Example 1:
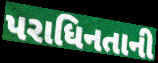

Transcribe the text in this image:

પરાધિનતાની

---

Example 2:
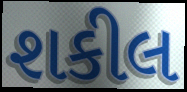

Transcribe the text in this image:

શકીલ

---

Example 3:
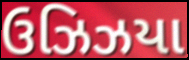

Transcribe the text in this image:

ઉઝિઝયા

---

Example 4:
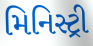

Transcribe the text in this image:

મિનિસ્ટ્રી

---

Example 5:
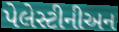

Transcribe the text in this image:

પેલેસ્ટીનીઅન